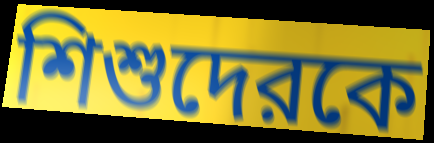
শিশুদেরকে